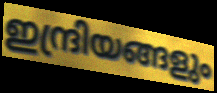
ഇന്ദ്രിയങ്ങളും